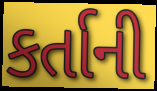
કર્તાની